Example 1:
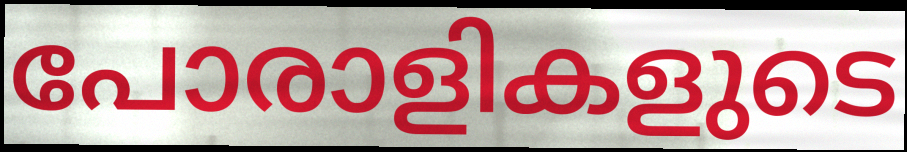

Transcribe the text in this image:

പോരാളികളുടെ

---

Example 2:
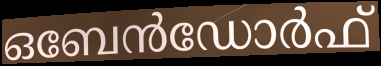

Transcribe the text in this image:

ഒബേൻഡോർഫ്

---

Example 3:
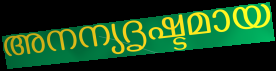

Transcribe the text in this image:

അനന്യദൃഷ്ടമായ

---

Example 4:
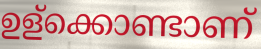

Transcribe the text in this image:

ഉള്ക്കൊണ്ടാണ്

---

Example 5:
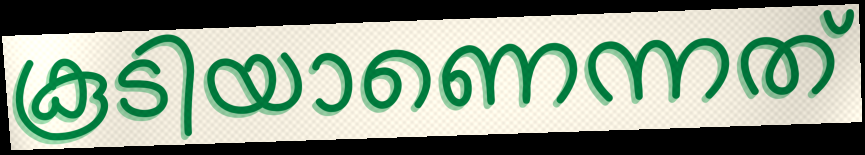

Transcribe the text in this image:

കൂടിയാണെന്നത്